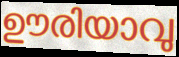
ഊരിയാവു